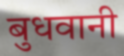
बुधवानी